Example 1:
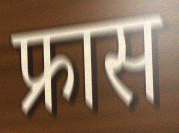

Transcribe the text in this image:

फ्रास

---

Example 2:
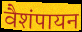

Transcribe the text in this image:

वैशंपायन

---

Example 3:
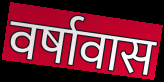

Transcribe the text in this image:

वर्षावास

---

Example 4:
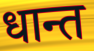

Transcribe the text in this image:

धान्त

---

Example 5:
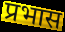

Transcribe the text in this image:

प्रभास